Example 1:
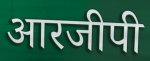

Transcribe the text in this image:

आरजीपी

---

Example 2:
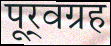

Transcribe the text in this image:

पूर्वग्रह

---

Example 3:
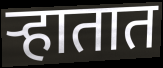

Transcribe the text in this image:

ऱ्हातात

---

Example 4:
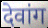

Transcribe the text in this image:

देवांग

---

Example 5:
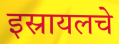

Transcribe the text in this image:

इस्रायलचे